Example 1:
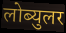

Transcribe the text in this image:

लोब्युलर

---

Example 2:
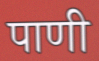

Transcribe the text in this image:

पाणी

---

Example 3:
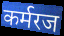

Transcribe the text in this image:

कर्मरज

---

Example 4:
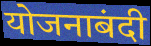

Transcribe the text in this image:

योजनाबंदी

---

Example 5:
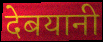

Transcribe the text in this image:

देबयानी